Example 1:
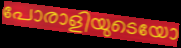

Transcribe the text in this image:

പോരാളിയുടെയോ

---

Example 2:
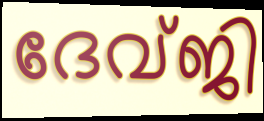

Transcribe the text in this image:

ദേവ്ജി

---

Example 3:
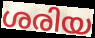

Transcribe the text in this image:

ശരിയ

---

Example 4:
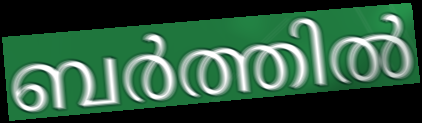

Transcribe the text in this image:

ബർത്തിൽ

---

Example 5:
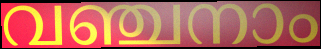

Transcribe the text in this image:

വഞ്ചനാം